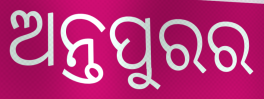
ଅନ୍ତପୁରର